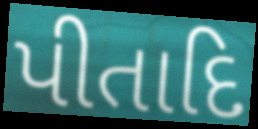
પીતાદિ